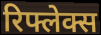
रिफ्लेक्स